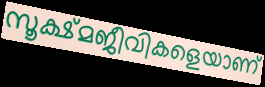
സൂക്ഷ്മജീവികളെയാണ്